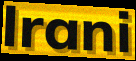
Irani